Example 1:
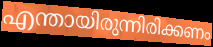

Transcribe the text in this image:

എന്തായിരുന്നിരിക്കണം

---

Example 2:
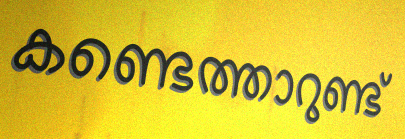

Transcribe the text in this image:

കണ്ടെത്താറുണ്ട്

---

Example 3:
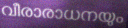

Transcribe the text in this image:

വീരാരാധനയും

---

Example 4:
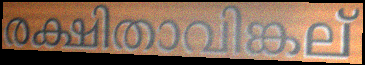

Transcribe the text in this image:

രക്ഷിതാവിങ്കല്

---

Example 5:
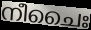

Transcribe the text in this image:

നീചൈഃ